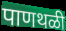
पाणथळी